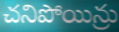
చనిపోయిన్రు